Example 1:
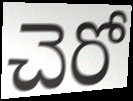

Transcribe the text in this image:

చెరో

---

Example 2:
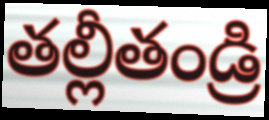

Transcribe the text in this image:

తల్లీతండ్రి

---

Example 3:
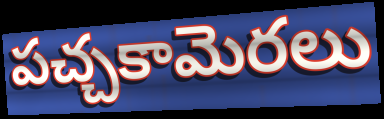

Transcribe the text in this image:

పచ్చకామెరలు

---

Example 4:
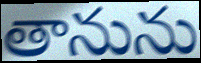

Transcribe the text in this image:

తానును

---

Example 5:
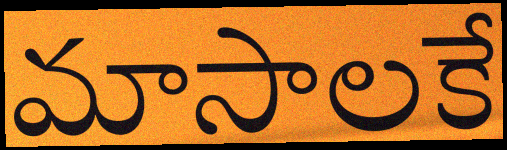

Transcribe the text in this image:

మాసాలకే